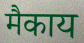
मैकाय